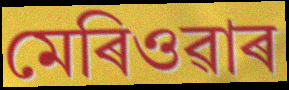
মেৰিওৱাৰ